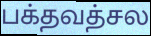
பக்தவத்சல